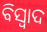
ବିସ୍ଵାଦ